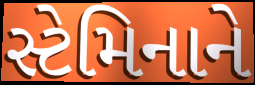
સ્ટેમિનાને